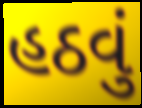
હઠવું